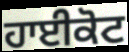
ਹਾਈਕੋਟ